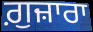
ਗ਼ੁਜ਼ਾਰਾ